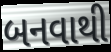
બનવાથી